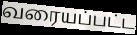
வரையப்பட்ட